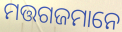
ମତ୍ତଗଜମାନେ